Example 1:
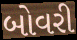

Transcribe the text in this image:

બોવરી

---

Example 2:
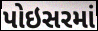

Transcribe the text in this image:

પોઇસરમાં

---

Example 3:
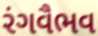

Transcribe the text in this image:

રંગવૈભવ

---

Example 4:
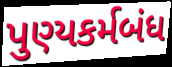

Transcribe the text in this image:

પુણ્યકર્મબંધ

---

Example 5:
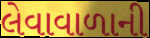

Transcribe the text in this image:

લેવાવાળાની